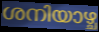
ശനിയാഴ്ച